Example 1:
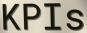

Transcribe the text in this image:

KPIs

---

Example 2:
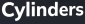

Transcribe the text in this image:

Cylinders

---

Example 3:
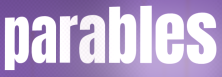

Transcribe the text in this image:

parables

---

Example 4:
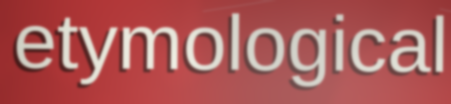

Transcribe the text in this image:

etymological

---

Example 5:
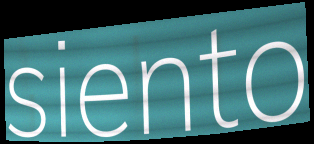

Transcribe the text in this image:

siento